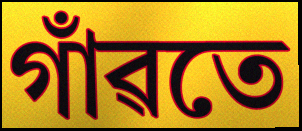
গাঁৱতে